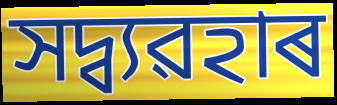
সদ্ব্যৱহাৰ